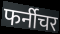
फर्नीचर